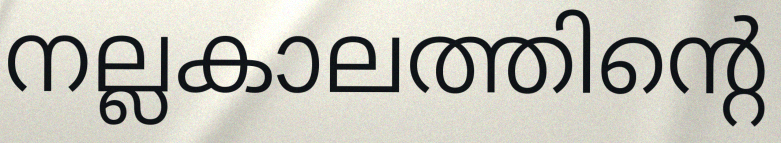
നല്ലകാലത്തിന്റെ